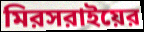
মিরসরাইয়ের